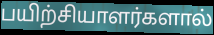
பயிற்சியாளர்களால்